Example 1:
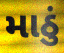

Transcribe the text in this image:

માઠું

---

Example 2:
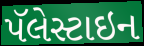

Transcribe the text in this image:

પૅલેસ્ટાઇન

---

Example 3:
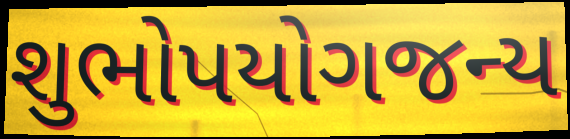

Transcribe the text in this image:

શુભોપયોગજન્ય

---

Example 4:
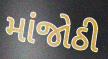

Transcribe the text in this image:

માંજોઠી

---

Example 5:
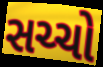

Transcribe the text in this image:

સચ્ચો